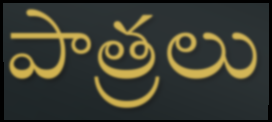
పాత్రలు